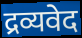
द्रव्यवेद